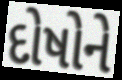
દોષોને